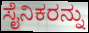
ಸೈನಿಕರನ್ನು